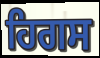
ਹਿਗਸ